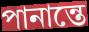
পানান্তে